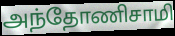
அந்தோணிசாமி